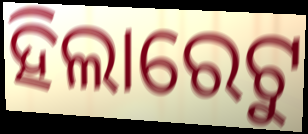
ହିଲାରେଟୁ